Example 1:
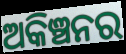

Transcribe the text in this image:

ଅକିଞ୍ଚନର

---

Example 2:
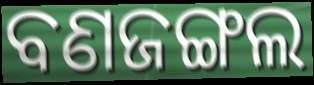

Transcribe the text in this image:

ବଣଜଙ୍ଗଲ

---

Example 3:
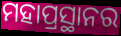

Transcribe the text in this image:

ମହାପ୍ରସ୍ଥାନର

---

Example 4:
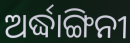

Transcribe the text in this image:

ଅର୍ଦ୍ଧାଙ୍ଗିନୀ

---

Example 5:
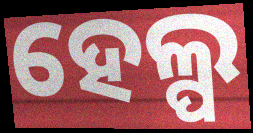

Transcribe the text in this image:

ହେଲ୍ପ